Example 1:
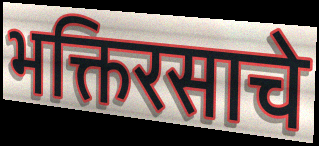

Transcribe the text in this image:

भक्तिरसाचे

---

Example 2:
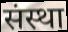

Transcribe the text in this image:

संस्था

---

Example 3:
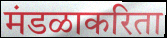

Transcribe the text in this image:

मंडळाकरिता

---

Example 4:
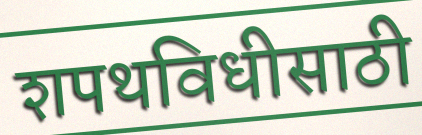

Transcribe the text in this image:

शपथविधीसाठी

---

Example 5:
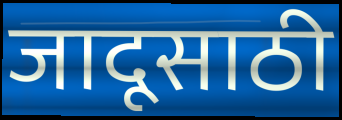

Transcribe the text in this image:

जादूसाठी